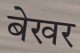
बेखर